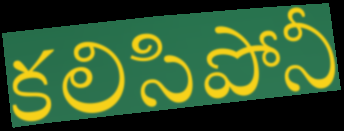
కలిసిపోనీ